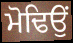
ਮੋਢਿਉਂ